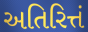
અતિરિત્તં